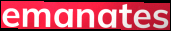
emanates